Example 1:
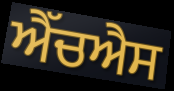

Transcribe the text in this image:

ਐੱਚਐਸ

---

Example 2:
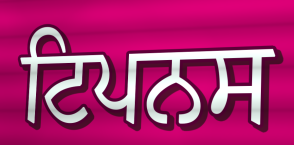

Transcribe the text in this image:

ਟਿਪਨਸ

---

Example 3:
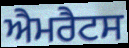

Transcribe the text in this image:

ਐਮਰੈਟਸ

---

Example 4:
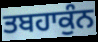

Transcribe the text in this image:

ਤਬਹਾਕੁੰਨ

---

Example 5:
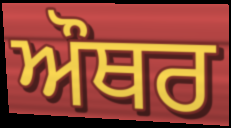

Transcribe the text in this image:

ਔਥਰ